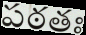
పఠతః